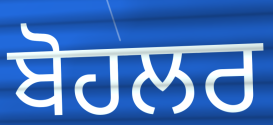
ਬੋਹਲਰ